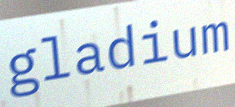
gladium